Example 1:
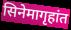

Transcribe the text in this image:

सिनेमागृहांत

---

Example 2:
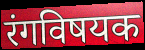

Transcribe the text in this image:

रंगविषयक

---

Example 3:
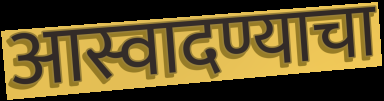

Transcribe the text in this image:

आस्वादण्याचा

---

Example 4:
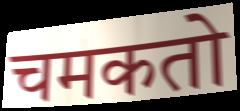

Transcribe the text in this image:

चमकतो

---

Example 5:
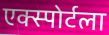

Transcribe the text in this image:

एक्स्पोर्टला